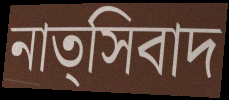
নাত্সিবাদ